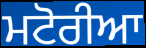
ਮਟੋਰੀਆ